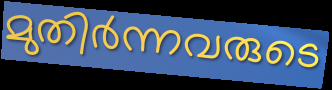
മുതിർന്നവരുടെ